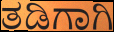
ತಡಿಗಾಗಿ